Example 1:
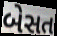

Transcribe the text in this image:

બેસત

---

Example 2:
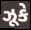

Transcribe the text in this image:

ઝૂકે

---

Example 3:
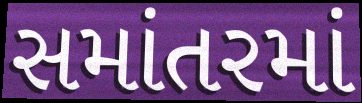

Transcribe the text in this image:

સમાંતરમાં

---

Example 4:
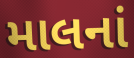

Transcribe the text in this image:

માલનાં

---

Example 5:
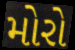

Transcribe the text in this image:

મોરો